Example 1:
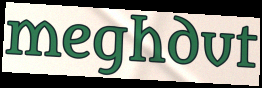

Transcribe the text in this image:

meghdut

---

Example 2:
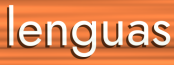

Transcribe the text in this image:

lenguas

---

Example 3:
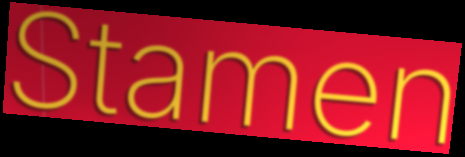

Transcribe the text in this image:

Stamen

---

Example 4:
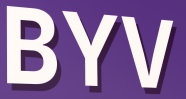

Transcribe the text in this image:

BYV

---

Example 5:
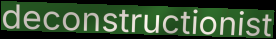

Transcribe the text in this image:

deconstructionist